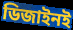
ডিজাইনই